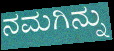
ನಮಗಿನ್ನು